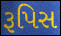
રૂપિસ